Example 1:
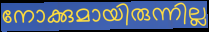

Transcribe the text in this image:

നോക്കുമായിരുന്നില്ല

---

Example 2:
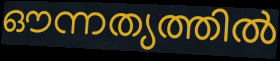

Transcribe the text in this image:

ഔന്നത്യത്തിൽ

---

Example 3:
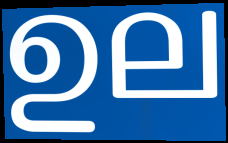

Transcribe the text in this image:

ഉല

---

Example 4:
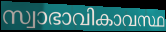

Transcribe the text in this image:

സ്വാഭാവികാവസ്ഥ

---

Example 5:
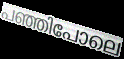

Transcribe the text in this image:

പഞ്ഞിപോലെ